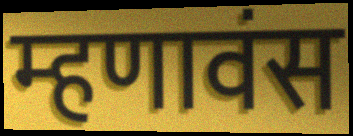
म्हणावंस